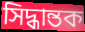
সিদ্ধান্তক